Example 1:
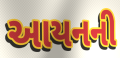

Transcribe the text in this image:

આયનની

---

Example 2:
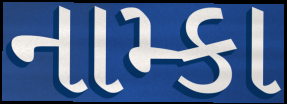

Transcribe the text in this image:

નામ્કા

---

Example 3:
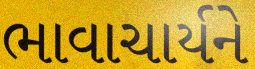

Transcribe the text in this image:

ભાવાચાર્યને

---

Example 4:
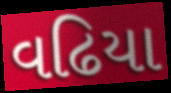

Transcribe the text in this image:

વઢિયા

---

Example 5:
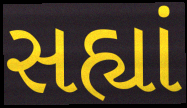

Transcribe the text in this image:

સહ્યાં